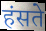
हंसते